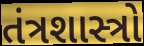
તંત્રશાસ્ત્રો